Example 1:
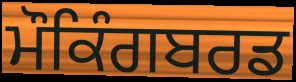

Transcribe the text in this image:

ਮੌਕਿੰਗਬਰਡ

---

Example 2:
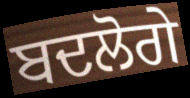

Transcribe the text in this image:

ਬਦਲੋਗੇ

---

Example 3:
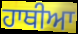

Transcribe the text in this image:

ਹਾਥੀਆ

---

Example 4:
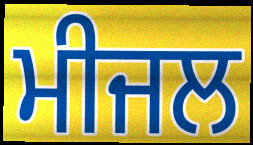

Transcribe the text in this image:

ਮੀਜਲ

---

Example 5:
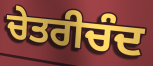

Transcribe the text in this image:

ਚੇਤਰੀਚੰਦ